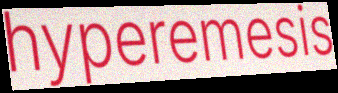
hyperemesis